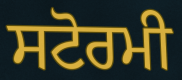
ਸਟੋਰਮੀ